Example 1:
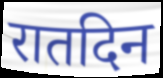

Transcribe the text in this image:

रातदिन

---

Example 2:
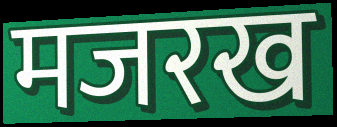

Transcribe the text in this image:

मजरख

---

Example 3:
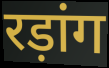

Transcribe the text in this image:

रड़ांग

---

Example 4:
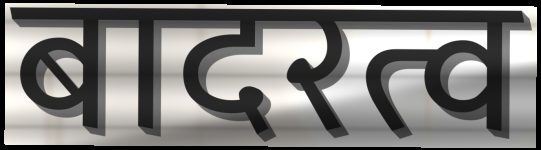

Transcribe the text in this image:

बादरत्व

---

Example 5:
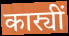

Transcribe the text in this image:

कार्र्यों